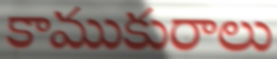
కాముకురాలు